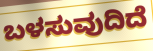
ಬಳಸುವುದಿದೆ